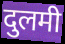
दुलमी